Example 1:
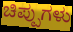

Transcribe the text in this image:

ಚಿಪ್ಪುಗಳು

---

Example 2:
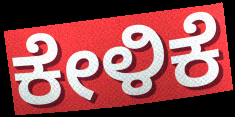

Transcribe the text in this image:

ಕೇಳಿಕೆ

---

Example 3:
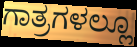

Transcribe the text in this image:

ಗಾತ್ರಗಳಲ್ಲೂ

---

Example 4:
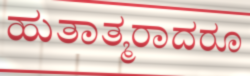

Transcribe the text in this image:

ಹುತಾತ್ಮರಾದರೂ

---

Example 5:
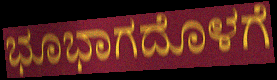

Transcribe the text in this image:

ಭೂಭಾಗದೊಳಗೆ